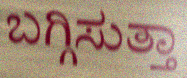
ಬಗ್ಗಿಸುತ್ತಾ